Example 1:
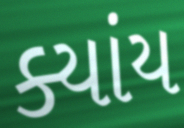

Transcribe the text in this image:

ક્યાંય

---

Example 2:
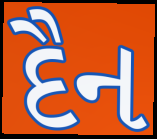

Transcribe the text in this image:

દૈન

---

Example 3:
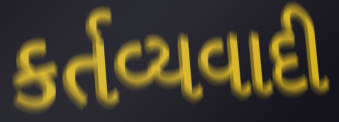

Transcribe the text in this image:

કર્તવ્યવાદી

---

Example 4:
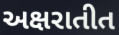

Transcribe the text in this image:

અક્ષરાતીત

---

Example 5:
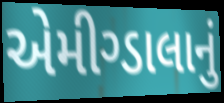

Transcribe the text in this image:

એમીગ્ડાલાનું